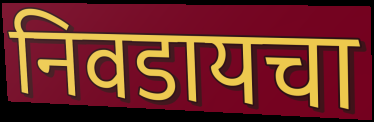
निवडायचा